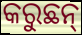
କରୁଛନ୍